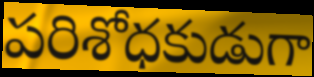
పరిశోధకుడుగా